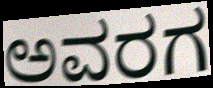
ಅವರಗ